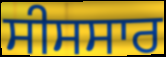
ਸੀਸਸਾਰ